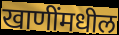
खाणींमधील